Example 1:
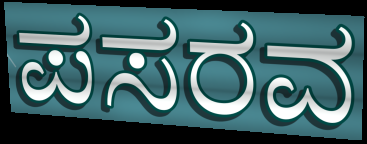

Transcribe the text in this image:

ಪಸರವ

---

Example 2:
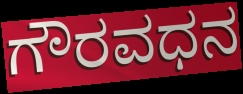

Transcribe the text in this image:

ಗೌರವಧನ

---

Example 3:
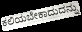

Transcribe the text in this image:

ಕಲಿಯಬೇಕಾದುದನ್ನು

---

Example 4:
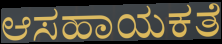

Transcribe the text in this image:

ಆಸಹಾಯಕತೆ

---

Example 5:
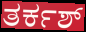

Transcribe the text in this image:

ತರ್ಕಶ್